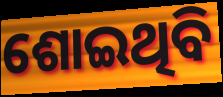
ଶୋଇଥିବି